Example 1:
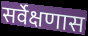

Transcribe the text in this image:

सर्वेक्षणास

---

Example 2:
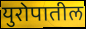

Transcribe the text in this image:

युरोपातील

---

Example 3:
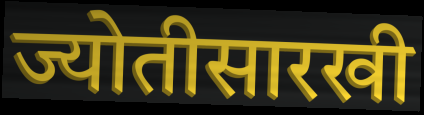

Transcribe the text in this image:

ज्योतीसारखी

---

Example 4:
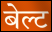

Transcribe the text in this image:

बेल्ट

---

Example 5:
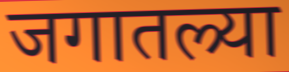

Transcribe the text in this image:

जगातल्या